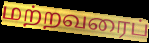
மற்றவரைப்